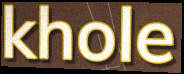
khole